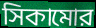
সিকামোর